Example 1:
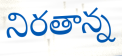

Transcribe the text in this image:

నిరతాన్న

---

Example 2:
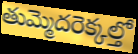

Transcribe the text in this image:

తుమ్మెదరెక్కల్తో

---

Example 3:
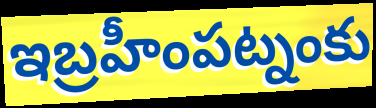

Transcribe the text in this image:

ఇబ్రహీంపట్నంకు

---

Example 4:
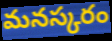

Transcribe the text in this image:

మనస్కరం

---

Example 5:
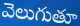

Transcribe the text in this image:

వెలుగుతూ